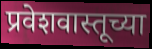
प्रवेशवास्तूच्या